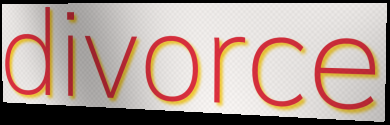
divorce